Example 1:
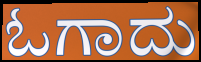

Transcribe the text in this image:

ಓಗಾದು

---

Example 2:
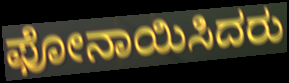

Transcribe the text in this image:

ಫೋನಾಯಿಸಿದರು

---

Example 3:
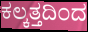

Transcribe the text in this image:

ಕಲ್ಕತ್ತದಿಂದ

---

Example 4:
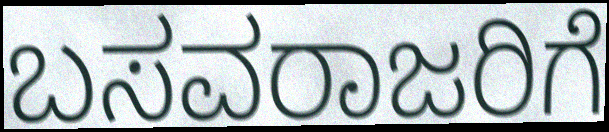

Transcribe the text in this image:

ಬಸವರಾಜರಿಗೆ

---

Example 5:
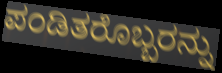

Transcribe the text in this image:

ಪಂಡಿತರೊಬ್ಬರನ್ನು